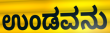
ಉಂಡವನು